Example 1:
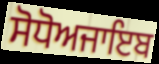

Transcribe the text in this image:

ਸੋਧੋਅਜਾਇਬ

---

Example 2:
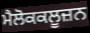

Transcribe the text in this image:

ਮੈਲੋਕਕਲੂਜ਼ਨ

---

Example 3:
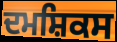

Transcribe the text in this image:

ਦਮਸ਼ਿਕਸ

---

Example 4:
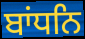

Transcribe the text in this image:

ਬਾਂਧਨਿ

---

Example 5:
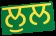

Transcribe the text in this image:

ਲੁਲ